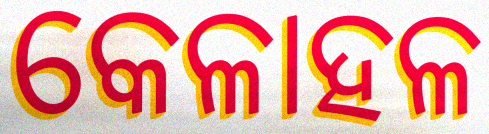
କେଳାହଳ